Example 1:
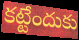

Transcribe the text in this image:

కట్టేందుకు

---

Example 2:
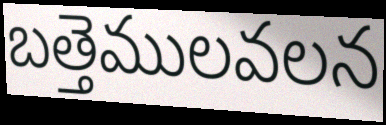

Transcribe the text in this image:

బత్తెములవలన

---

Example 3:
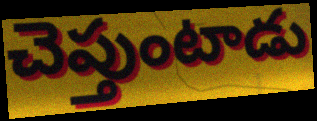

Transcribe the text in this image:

చెప్తుంటాడు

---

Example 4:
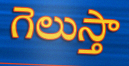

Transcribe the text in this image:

గెలుస్తా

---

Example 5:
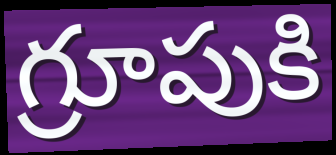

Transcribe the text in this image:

గ్రూపుకి